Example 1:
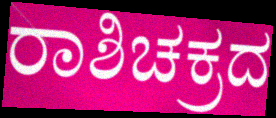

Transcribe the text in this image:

ರಾಶಿಚಕ್ರದ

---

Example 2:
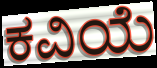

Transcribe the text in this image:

ಕವಿಯೆ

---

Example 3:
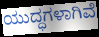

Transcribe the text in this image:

ಯುದ್ಧಗಳಾಗಿವೆ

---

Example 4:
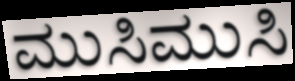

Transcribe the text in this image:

ಮುಸಿಮುಸಿ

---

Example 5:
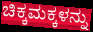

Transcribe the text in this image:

ಚಿಕ್ಕಮಕ್ಕಳನ್ನು